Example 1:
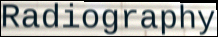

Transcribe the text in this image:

Radiography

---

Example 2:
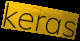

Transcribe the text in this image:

keras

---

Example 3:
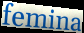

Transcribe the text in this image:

femina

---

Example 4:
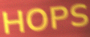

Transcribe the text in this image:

HOPS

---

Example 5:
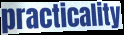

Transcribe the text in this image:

practicality